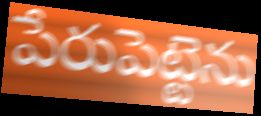
పేరుపెట్టెను